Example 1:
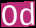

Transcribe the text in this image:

Od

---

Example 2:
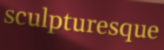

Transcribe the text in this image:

sculpturesque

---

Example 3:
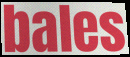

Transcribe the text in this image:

bales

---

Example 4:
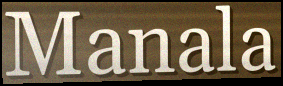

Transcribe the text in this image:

Manala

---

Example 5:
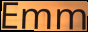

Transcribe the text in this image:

Emm